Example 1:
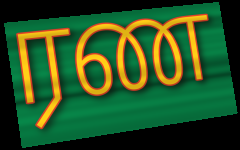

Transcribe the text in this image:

ரண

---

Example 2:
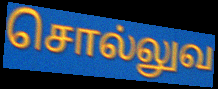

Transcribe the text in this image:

சொல்லுவ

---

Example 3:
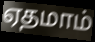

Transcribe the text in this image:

ஏதமாம்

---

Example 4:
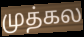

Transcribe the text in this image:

முத்கல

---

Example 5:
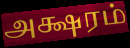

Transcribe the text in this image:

அக்ஷரம்